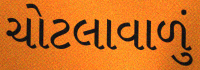
ચોટલાવાળું